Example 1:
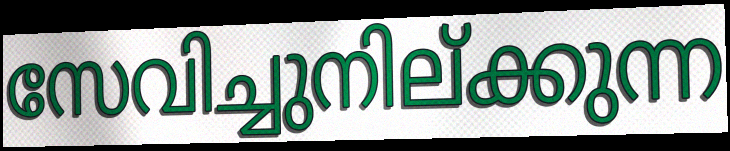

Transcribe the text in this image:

സേവിച്ചുനില്ക്കുന്ന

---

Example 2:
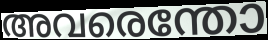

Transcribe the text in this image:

അവരെന്തോ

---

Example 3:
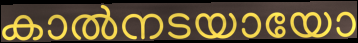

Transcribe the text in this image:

കാൽനടയായോ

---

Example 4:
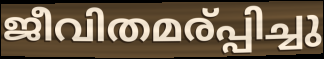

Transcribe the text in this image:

ജീവിതമര്പ്പിച്ചു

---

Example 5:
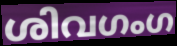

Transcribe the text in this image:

ശിവഗംഗ